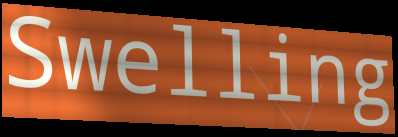
Swelling